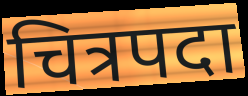
चित्रपदा